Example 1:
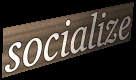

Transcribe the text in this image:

socialize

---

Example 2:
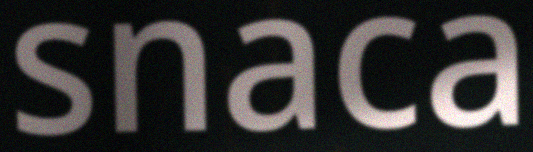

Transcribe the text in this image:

snaca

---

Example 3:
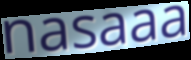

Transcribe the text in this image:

nasaaa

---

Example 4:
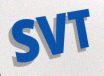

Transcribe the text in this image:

SVT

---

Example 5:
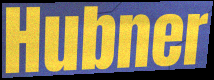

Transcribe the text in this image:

Hubner